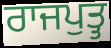
ਰਾਜਪੁਤ੍ਤ